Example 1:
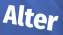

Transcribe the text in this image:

Alter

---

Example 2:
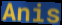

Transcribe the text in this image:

Anis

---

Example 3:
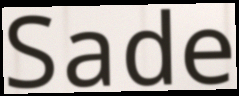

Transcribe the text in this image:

Sade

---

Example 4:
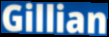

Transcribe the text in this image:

Gillian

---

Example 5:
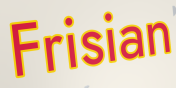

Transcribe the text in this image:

Frisian